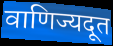
वाणिज्यदूत